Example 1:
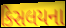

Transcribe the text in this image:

કિસલયના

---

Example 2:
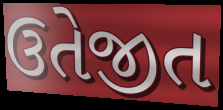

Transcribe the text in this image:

ઉતેજીત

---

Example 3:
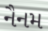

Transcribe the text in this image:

નૈનમ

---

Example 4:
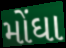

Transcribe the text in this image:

મોંઘા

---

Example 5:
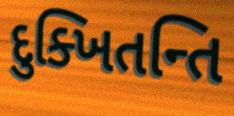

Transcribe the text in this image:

દુક્ખિતન્તિ